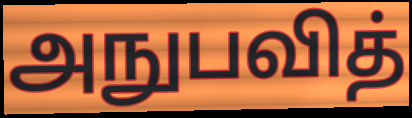
அநுபவித்